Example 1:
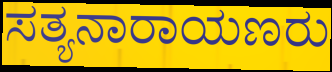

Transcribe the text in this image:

ಸತ್ಯನಾರಾಯಣರು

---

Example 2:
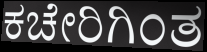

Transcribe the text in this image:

ಕಚೇರಿಗಿಂತ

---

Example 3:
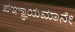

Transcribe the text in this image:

ಪಞ್ಞಾಯಮಾನೇ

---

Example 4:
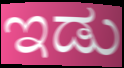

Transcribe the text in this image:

ಇಡು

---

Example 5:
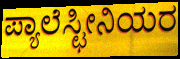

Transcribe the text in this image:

ಪ್ಯಾಲೆಸ್ಟೀನಿಯರ